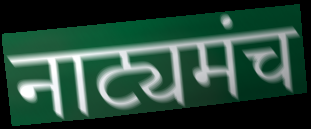
नाट्यमंच